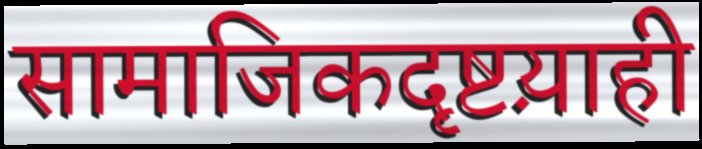
सामाजिकदृष्टय़ाही